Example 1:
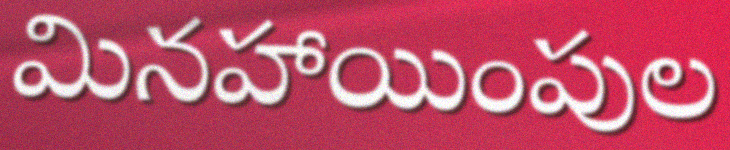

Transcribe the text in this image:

మినహాయింపుల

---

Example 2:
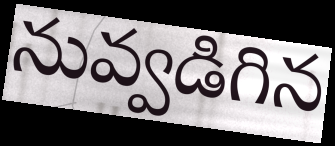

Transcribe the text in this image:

నువ్వడిగిన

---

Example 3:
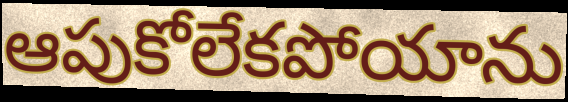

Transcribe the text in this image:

ఆపుకోలేకపోయాను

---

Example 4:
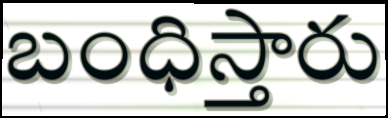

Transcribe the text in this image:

బంధిస్తారు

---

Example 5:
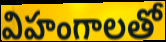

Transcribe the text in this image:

విహంగాలతో